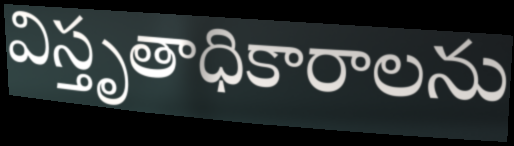
విస్తృతాధికారాలను